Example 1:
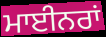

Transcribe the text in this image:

ਮਾਈਨਰਾਂ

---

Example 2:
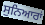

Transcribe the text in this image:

ਸੁਨਿਆਰਾਂ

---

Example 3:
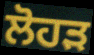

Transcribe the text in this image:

ਲੋਹੜ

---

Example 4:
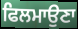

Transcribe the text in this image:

ਫਿਲਮਾਉਣਾ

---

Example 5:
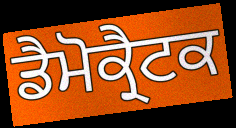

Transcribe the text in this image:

ਡੈਮੋਕ੍ਰੈਟਕ